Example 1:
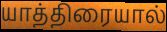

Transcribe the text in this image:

யாத்திரையால்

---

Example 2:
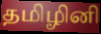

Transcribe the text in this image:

தமிழினி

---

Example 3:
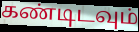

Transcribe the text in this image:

கண்டிடவும்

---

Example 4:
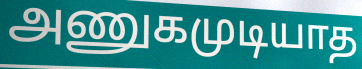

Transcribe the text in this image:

அணுகமுடியாத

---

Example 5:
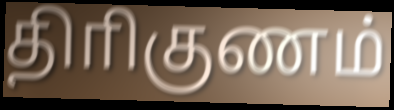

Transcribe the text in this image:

திரிகுணம்